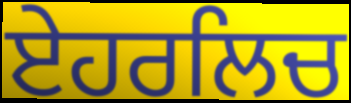
ਏਹਰਲਿਚ